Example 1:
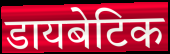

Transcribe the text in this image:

डायबेटिक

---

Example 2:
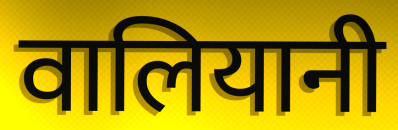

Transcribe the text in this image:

वालियानी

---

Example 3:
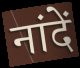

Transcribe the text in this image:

नांदें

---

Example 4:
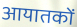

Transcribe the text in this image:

आयातकों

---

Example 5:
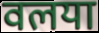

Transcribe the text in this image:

वलया